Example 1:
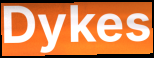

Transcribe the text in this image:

Dykes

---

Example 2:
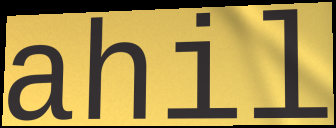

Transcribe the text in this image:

ahil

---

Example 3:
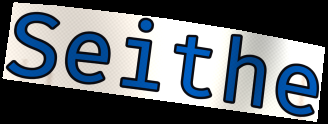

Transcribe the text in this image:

Seithe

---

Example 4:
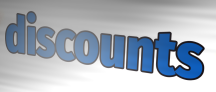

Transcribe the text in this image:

discounts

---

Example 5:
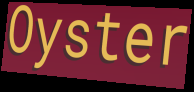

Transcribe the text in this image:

Oyster